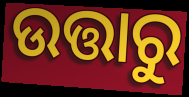
ଉତ୍ତାରୁ